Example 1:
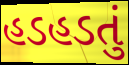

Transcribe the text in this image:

હડહડતું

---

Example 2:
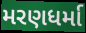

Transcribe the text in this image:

મરણધર્મા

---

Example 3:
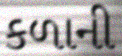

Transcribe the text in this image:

કળાની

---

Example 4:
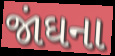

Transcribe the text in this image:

જાંઘના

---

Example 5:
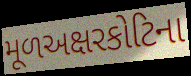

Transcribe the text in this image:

મૂળઅક્ષરકોટિના